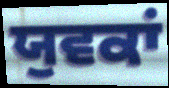
ਯੁਵਕਾਂ